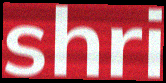
shri